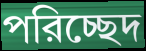
পরিচ্ছেদ